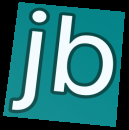
jb